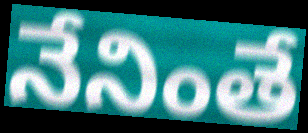
నేనింతే